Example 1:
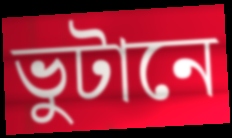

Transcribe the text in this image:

ভুটানে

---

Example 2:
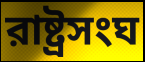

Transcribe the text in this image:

রাষ্ট্রসংঘ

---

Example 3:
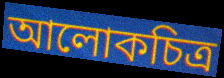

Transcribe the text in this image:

আলোকচিত্র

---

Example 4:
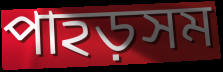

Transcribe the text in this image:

পাহড়সম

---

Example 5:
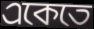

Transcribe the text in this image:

একেতে